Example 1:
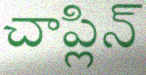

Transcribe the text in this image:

చాప్లిన్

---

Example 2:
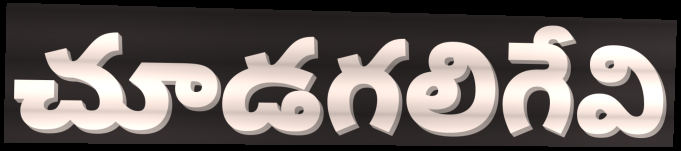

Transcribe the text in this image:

చూడగలిగేవి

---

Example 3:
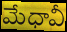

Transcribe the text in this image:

మేధావీ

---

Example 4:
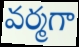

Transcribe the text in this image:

వర్మగా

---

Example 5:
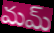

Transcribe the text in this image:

మమ్